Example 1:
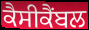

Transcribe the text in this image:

ਕੈਸੀਕੈਂਬਲ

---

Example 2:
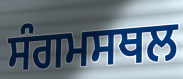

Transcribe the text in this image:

ਸੰਗਮਸਥਲ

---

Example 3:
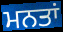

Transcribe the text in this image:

ਮਨਤਾਂ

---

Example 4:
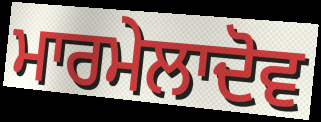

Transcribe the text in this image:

ਮਾਰਮੇਲਾਦੋਵ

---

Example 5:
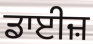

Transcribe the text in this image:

ਡਾਈਜ਼